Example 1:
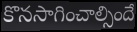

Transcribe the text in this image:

కొనసాగించాల్సిందే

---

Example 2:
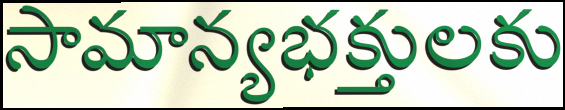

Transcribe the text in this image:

సామాన్యభక్తులకు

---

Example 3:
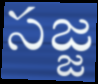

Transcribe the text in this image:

సజ్జ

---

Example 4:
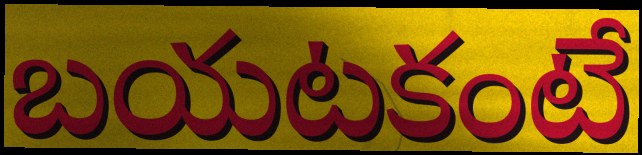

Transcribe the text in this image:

బయటకంటే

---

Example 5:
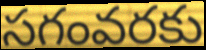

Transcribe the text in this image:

సగంవరకు